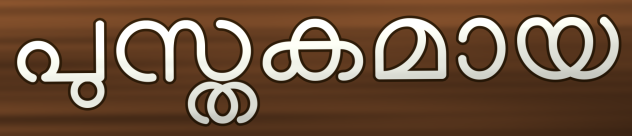
പുസ്തകമായ